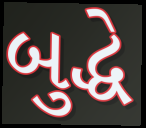
બુદ્ધે